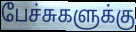
பேச்சுகளுக்கு